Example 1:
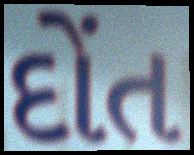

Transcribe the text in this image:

દોંત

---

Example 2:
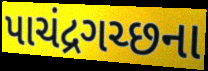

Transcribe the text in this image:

પાચંદ્રગચ્છના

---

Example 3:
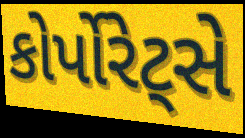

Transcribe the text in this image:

કોર્પોરેટ્સે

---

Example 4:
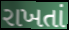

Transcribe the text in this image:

રાખતાં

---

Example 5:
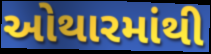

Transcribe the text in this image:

ઓથારમાંથી